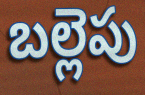
బల్లెపు